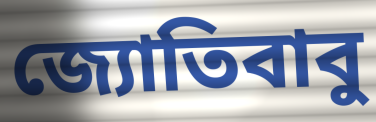
জ্যোতিবাবু